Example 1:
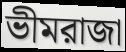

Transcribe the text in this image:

ভীমরাজা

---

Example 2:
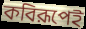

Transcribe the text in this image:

কবিরূপেই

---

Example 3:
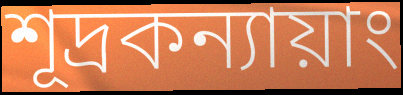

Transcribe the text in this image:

শূদ্রকন্যায়াং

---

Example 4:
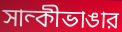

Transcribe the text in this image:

সান্কীভাঙার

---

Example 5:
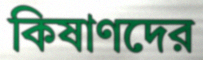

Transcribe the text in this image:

কিষাণদের